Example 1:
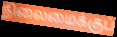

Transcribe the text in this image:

நிலைமைக்குப்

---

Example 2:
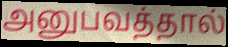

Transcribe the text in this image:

அனுபவத்தால்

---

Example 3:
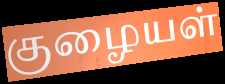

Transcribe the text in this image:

குழையள்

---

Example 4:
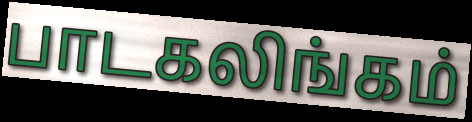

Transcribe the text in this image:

பாடகலிங்கம்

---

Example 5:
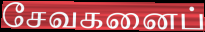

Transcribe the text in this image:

சேவகனைப்